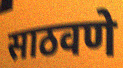
साठवणे